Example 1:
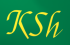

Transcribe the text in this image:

KSh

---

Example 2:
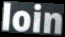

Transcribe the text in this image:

loin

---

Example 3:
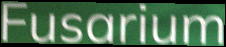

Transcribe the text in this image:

Fusarium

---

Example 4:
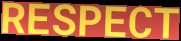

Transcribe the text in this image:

RESPECT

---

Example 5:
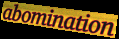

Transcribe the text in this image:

abomination